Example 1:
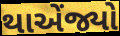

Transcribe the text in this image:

થાએંજ્યો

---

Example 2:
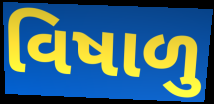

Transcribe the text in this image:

વિષાળુ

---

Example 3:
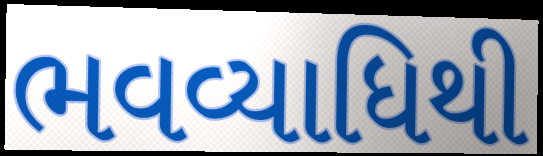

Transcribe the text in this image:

ભવવ્યાધિથી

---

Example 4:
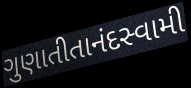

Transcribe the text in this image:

ગુણાતીતાનંદસ્વામી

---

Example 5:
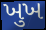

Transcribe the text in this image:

ખુખ